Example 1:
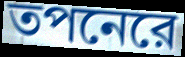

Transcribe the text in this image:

তপনেরে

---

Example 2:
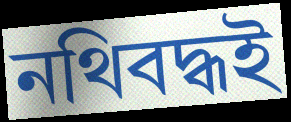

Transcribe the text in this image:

নথিবদ্ধই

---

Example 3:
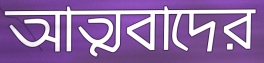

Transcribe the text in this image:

আত্মবাদের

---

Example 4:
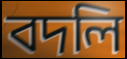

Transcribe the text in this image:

বদলি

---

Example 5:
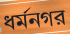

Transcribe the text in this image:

ধর্মনগর